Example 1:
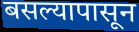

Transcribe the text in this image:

बसल्यापासून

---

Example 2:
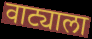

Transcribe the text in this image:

वाट्याला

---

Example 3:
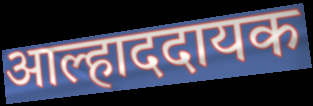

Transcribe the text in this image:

आल्हाददायक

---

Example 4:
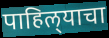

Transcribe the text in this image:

पाहिल्याचा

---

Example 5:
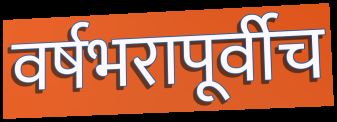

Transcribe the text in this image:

वर्षभरापूर्वीच